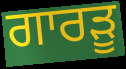
ਗਾਰੜੂ